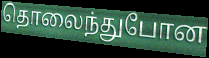
தொலைந்துபோன